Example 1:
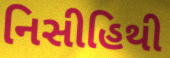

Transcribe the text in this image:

નિસીહિથી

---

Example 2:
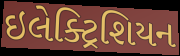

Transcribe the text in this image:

ઇલેક્ટ્રિશિયન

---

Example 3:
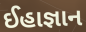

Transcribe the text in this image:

ઈહાજ્ઞાન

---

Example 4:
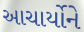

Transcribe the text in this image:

આચાર્યોને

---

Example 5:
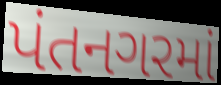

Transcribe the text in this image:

પંતનગરમાં